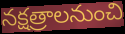
నక్షత్రాలనుంచి